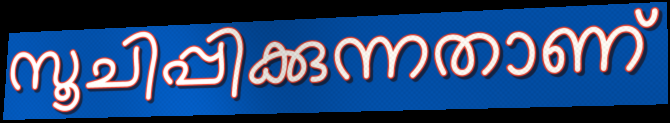
സൂചിപ്പിക്കുന്നതാണ്